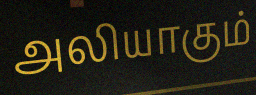
அலியாகும்